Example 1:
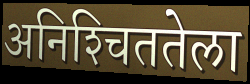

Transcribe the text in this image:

अनिश्चिततेला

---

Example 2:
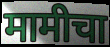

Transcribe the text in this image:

मामीचा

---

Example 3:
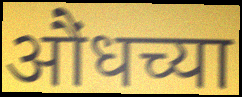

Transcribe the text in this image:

औंधच्या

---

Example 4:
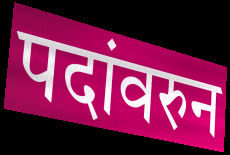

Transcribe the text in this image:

पदांवरुन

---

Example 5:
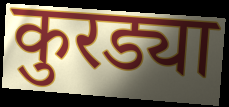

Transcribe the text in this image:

कुरड्या